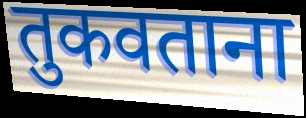
तुकवताना